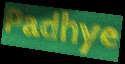
Padhye